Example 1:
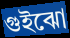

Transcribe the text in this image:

গুইঝো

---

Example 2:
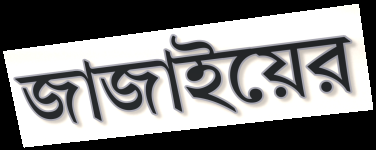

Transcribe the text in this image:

জাজাইয়ের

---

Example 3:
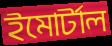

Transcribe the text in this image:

ইমোর্টাল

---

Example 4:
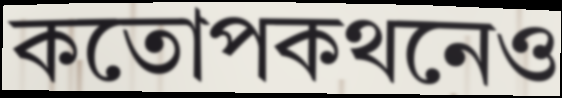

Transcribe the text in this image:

কতোপকথনেও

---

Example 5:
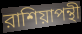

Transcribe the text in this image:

রাশিয়াপন্থী